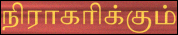
நிராகரிக்கும்